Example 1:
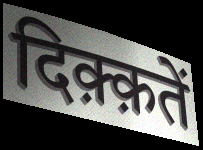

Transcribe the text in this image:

दिक़्क़तें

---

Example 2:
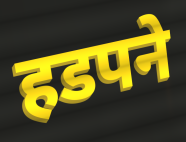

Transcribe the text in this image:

हडपने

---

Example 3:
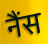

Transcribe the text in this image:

नैंस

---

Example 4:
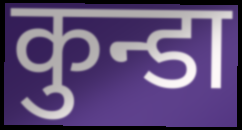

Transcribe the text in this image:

कुन्डा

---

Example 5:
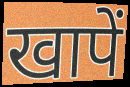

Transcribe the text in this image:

खापें